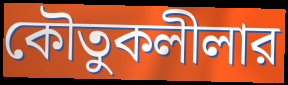
কৌতুকলীলার